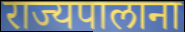
राज्यपालाना